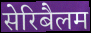
सेरिबैलम